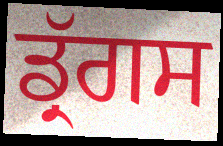
ਡ੍ਰੱਗਸ